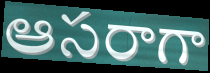
ఆసరాగా